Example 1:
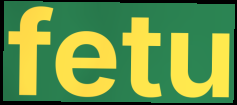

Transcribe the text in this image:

fetu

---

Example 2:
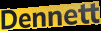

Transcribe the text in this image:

Dennett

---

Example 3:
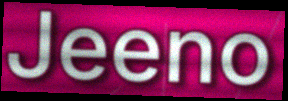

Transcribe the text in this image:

Jeeno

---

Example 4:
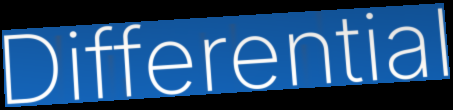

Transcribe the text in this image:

Differential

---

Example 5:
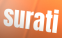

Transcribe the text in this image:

surati